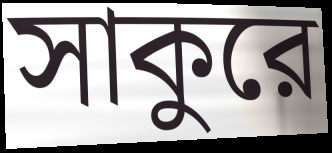
সাকুরে